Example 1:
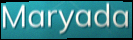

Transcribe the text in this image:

Maryada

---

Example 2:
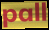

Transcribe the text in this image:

pall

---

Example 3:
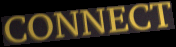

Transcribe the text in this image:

CONNECT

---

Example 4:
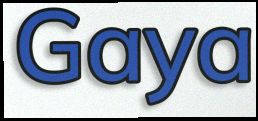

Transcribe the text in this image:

Gaya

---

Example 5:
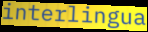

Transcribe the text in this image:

interlingua